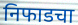
निफाडचा